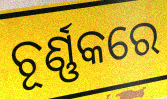
ଚୂର୍ଣ୍ଣକରେ